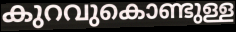
കുറവുകൊണ്ടുള്ള